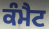
ਕੰਮੈਟ